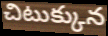
చిటుక్కున